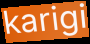
karigi